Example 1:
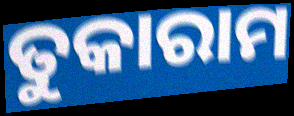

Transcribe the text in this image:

ତୁକାରାମ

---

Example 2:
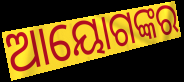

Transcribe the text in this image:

ଆୟୋଗଙ୍କର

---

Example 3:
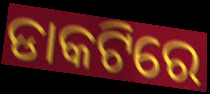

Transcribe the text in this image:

ଡାକଟିରେ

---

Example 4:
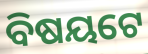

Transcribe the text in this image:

ବିଷୟଟେ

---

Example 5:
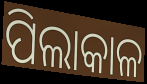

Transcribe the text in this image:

ପିଲାକାଳ